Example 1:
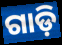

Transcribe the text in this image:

ଗାଡ଼ି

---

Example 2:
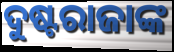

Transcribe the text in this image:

ଦୁଷ୍ଟରାଜାଙ୍କ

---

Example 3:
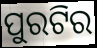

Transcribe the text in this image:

ପୁରଟିର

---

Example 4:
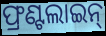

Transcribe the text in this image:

ଫ୍ରଣ୍ଟଲାଇନ୍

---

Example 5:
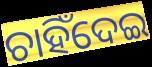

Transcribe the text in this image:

ଚାହିଁଦେଇ